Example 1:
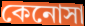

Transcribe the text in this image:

কেনোসা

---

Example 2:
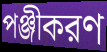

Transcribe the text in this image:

পঞ্জীকরণ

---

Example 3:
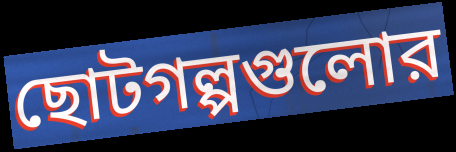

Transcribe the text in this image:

ছোটগল্পগুলোর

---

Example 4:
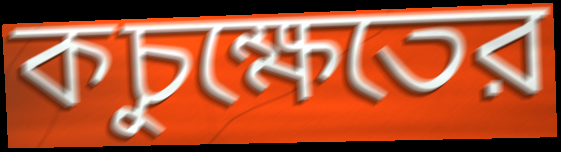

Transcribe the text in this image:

কচুক্ষেতের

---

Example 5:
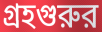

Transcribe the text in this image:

গ্রহগুরুর